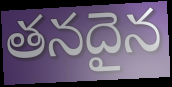
తనదైన